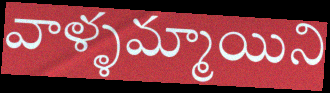
వాళ్ళమ్మాయిని